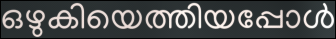
ഒഴുകിയെത്തിയപ്പോൾ